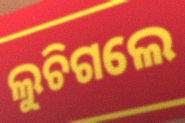
ଲୁଚିଗଲେ